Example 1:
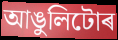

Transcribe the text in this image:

আঙুলিটোৰ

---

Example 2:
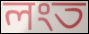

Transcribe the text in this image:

লংত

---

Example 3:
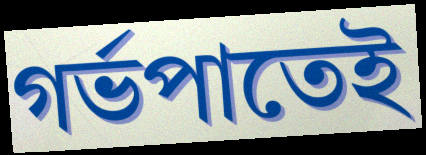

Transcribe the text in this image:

গৰ্ভপাতেই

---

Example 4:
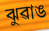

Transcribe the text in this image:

ঝুৱাঙ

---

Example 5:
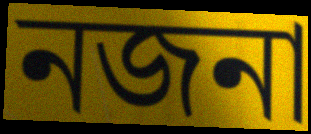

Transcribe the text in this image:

নজনা